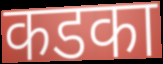
कडका